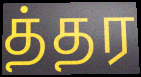
த்தர